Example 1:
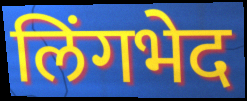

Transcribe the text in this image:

लिंगभेद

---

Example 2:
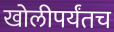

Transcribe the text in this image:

खोलीपर्यंतच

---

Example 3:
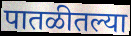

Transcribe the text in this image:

पातळीतल्या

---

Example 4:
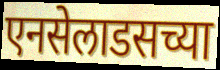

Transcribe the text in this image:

एनसेलाडसच्या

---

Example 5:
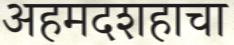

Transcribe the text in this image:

अहमदशहाचा